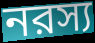
নরস্য